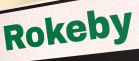
Rokeby